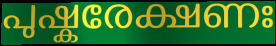
പുഷ്കരേക്ഷണഃ